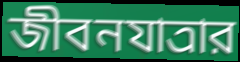
জীবনযাত্রার